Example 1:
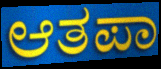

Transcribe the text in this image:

ಆತಪಾ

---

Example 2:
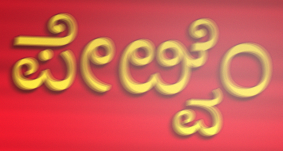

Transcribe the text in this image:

ಪೇೞ್ವೆಂ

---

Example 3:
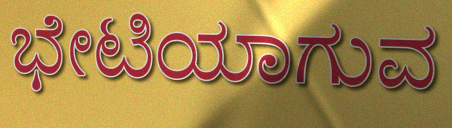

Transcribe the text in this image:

ಭೇಟಿಯಾಗುವ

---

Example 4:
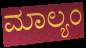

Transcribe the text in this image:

ಮಾಲ್ಯಂ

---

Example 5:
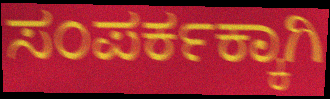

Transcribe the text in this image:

ಸಂಪರ್ಕಕ್ಕಾಗಿ